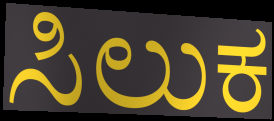
ಸಿಲುಕ